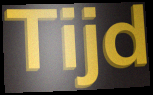
Tijd